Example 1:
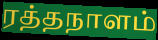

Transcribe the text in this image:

ரத்தநாளம்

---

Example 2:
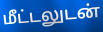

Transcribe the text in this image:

மீட்டலுடன்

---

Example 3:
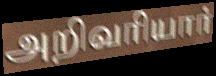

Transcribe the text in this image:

அறிவரியார்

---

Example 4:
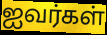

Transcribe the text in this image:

ஐவர்கள்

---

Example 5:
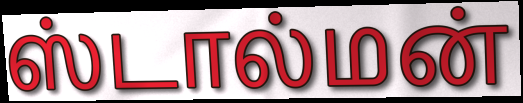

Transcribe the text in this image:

ஸ்டால்மன்